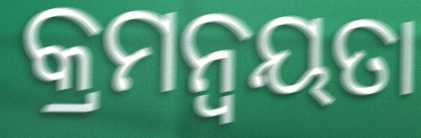
କ୍ରମନ୍ବୟତା